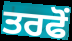
ਤਰਫੋਂ